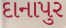
દાનાપુર